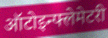
ऑटोइन्फ्लेमेटरी